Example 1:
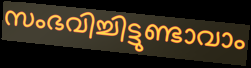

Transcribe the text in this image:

സംഭവിച്ചിട്ടുണ്ടാവാം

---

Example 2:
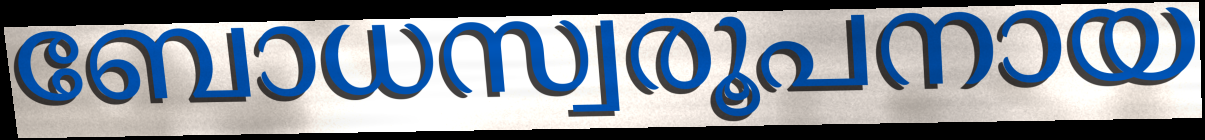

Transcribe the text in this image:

ബോധസ്വരൂപനായ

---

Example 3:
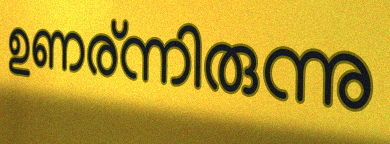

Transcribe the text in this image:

ഉണര്ന്നിരുന്നു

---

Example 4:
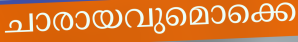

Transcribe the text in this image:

ചാരായവുമൊക്കെ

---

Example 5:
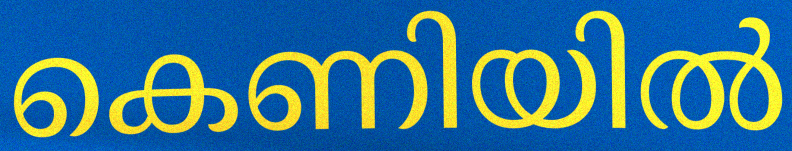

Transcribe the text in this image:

കെണിയിൽ